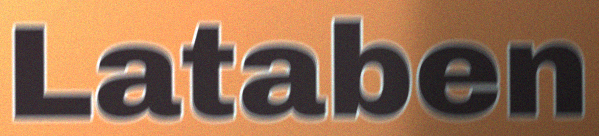
Lataben